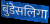
बुंडेसलिगा